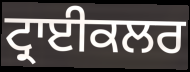
ਟ੍ਰਾਈਕਲਰ